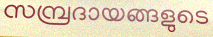
സമ്പ്രദായങ്ങളുടെ